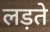
लड़ते